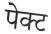
पेक्ट